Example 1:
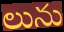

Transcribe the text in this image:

లును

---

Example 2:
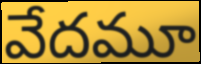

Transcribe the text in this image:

వేదమూ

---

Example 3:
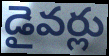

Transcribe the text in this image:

డైవర్లు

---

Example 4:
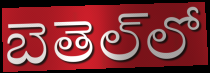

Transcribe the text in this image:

బెతెల్‌లో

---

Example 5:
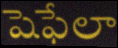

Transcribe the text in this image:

షెఫేలా